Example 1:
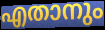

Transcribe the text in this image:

എതാനും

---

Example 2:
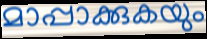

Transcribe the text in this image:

മാപ്പാക്കുകയും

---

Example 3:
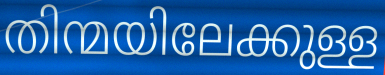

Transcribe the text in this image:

തിന്മയിലേക്കുള്ള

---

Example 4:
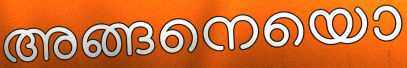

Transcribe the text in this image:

അങ്ങനെയൊ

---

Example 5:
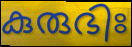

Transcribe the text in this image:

കുരുഭിഃ